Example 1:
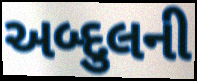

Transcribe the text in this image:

અબ્દુલની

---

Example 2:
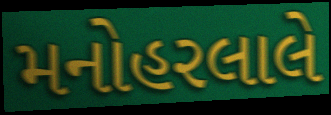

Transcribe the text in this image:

મનોહરલાલે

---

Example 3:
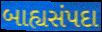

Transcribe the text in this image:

બાહ્યસંપદા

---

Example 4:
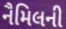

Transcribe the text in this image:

નૈમિલની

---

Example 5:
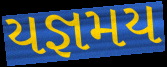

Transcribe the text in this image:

યજ્ઞમય